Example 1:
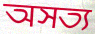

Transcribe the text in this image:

অসত্য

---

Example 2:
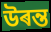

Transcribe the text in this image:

উৰন্ত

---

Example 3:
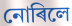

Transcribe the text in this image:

নোৰিলে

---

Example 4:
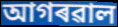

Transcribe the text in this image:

আগৰৱাল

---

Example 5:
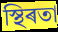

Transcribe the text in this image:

স্থিৰতা